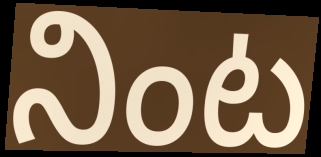
నింట